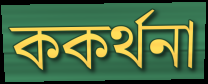
ককৰ্থনা